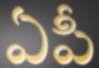
ఏపీ